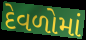
દેવળોમાં